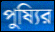
পুষ্যির